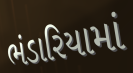
ભંડારિયામાં